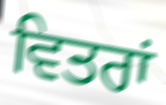
ਵਿਤਰਾਂ